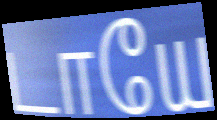
டாயே